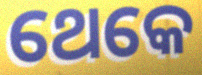
ଥେକେ